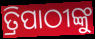
ତ୍ରିପାଠୀଙ୍କୁ